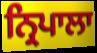
ਨ੍ਰਿਪਾਲਾ